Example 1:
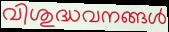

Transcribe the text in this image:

വിശുദ്ധവനങ്ങൾ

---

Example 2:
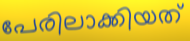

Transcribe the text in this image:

പേരിലാക്കിയത്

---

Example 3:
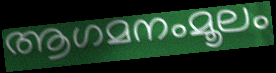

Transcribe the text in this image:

ആഗമനംമൂലം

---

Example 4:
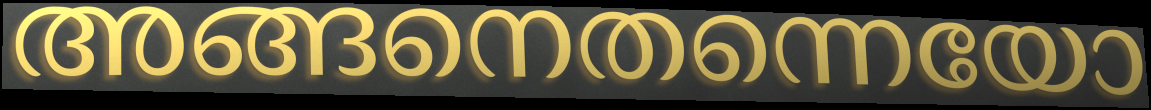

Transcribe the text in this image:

അങ്ങനെതന്നെയോ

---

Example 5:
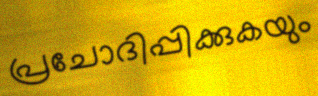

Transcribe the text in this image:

പ്രചോദിപ്പിക്കുകയും